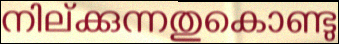
നില്ക്കുന്നതുകൊണ്ടു